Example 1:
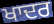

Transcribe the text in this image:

ਖਾਦਰ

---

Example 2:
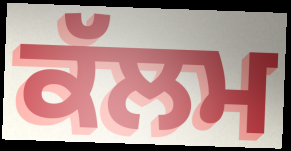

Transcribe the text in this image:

ਕੱਲਮ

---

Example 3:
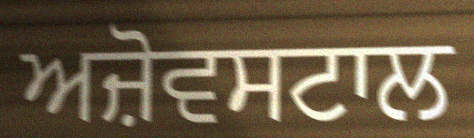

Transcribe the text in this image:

ਅਜ਼ੋਵਸਟਾਲ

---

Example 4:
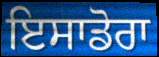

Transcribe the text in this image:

ਇਸਾਡੋਰਾ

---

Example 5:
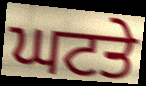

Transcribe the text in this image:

ਘਟਤੇ